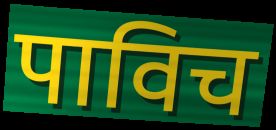
पाविच